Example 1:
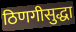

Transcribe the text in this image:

ठिणगीसुद्धा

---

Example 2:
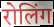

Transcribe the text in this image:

रोलिंग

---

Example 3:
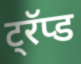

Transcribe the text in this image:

ट्रॅप्ड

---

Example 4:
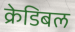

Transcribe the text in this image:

क्रेडिबल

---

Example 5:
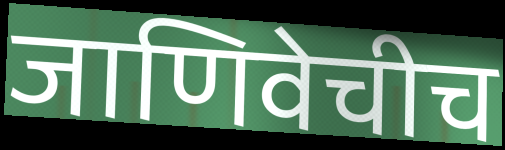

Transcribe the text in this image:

जाणिवेचीच